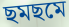
ছমছমে